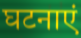
घटनाएं